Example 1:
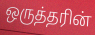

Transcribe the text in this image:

ஒருத்தரின்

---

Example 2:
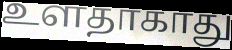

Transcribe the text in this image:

உளதாகாது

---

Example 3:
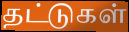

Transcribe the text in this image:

தட்டுகள்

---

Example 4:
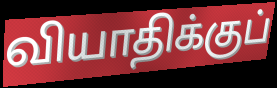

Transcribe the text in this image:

வியாதிக்குப்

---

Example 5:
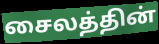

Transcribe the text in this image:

சைலத்தின்